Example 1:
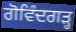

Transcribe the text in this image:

ਗੋਵਿੰਦਗੜ੍ਹ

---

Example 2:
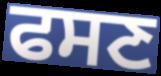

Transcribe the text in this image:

ਫਸਣ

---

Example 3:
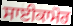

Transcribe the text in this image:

ਸਾਈਕਾਮੋਰ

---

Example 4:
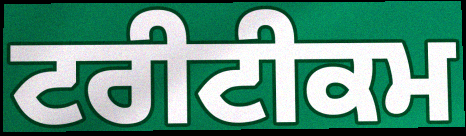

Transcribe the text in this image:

ਟਰੀਟੀਕਮ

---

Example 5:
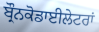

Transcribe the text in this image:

ਬ੍ਰੌਨਕੋਡਾਈਲੇਟਰਾਂ